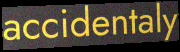
accidentaly